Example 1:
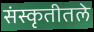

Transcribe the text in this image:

संस्कृतीतले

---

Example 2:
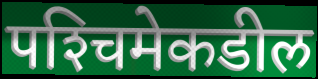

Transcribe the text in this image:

पश्चिमेकडील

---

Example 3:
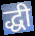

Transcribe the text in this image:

द्धी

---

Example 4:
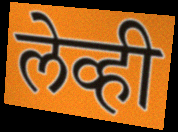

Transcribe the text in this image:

लेव्ही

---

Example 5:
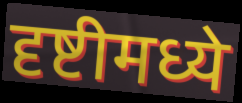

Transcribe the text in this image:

दृष्टीमध्ये